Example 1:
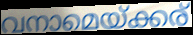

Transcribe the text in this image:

വനാമെയ്ക്കര്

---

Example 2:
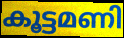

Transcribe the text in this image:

കൂട്ടമണി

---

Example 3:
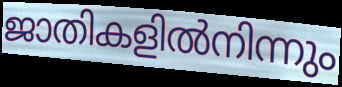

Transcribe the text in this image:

ജാതികളിൽനിന്നും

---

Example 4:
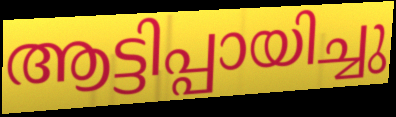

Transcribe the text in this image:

ആട്ടിപ്പായിച്ചു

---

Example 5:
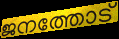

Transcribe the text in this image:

ജനത്തോട്